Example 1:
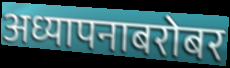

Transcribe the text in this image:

अध्यापनाबरोबर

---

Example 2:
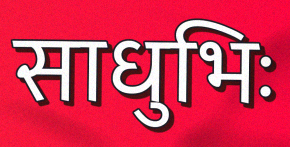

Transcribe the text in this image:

साधुभिः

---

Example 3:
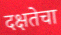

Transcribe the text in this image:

दक्षतेचा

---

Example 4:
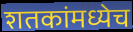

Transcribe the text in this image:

शतकांमध्येच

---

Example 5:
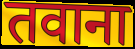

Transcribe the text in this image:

तवाना